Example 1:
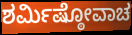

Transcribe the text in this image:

ಶರ್ಮಿಷ್ಠೋವಾಚ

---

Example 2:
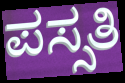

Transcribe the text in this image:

ಪಸ್ಸತಿ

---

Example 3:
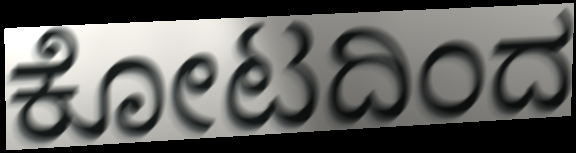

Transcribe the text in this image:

ಕೋಟದಿಂದ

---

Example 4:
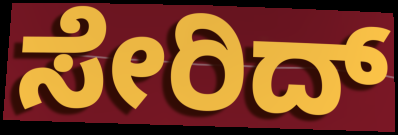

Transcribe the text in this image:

ಸೇರಿದ್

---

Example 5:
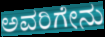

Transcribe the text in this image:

ಅವರಿಗೇನು